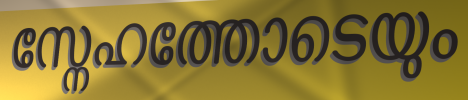
സ്നേഹത്തോടെയും